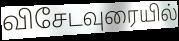
விசேடவுரையில்